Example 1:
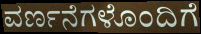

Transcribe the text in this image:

ವರ್ಣನೆಗಳೊಂದಿಗೆ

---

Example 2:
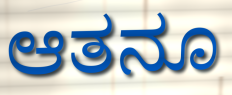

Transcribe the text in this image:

ಆತನೂ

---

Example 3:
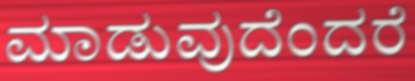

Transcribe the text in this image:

ಮಾಡುವುದೆಂದರೆ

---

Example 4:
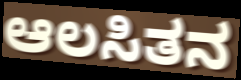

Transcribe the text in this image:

ಆಲಸಿತನ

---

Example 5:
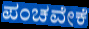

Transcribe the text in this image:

ಪಂಚವೇಕೆ